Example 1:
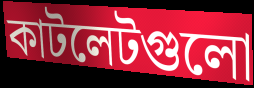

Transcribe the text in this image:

কাটলেটগুলো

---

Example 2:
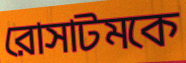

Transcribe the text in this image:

রোসাটমকে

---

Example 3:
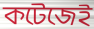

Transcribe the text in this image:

কটেজেই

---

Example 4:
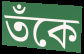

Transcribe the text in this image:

তঁকে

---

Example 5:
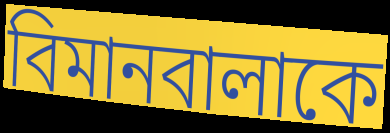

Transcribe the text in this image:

বিমানবালাকে